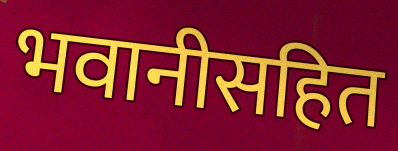
भवानीसहित